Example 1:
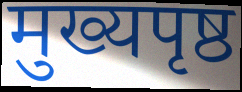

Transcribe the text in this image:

मुख्यपृष्ठ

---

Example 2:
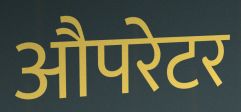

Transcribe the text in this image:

औपरेटर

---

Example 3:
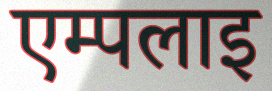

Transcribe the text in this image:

एम्पलाइ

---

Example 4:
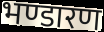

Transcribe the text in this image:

भण्डारण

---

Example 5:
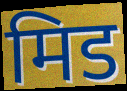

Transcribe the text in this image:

मिड